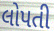
લોપતી